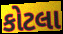
કોટલા